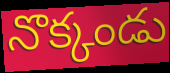
నొక్కండు